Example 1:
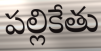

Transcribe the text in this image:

పల్లికేతు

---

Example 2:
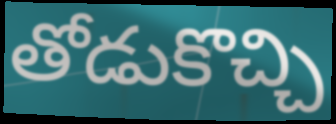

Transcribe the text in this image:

తోడుకొచ్చి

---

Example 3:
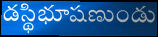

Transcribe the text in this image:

డస్థిభూషణుండు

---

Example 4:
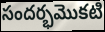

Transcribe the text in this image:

సందర్భమొకటి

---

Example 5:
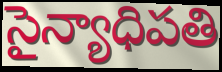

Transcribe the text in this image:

సైన్యాధిపతి